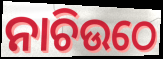
ନାଚିଉଠେ